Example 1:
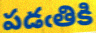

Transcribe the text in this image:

పడఁతికి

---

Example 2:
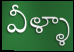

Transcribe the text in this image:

వీళ్ళా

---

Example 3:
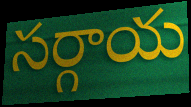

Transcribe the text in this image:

సర్గాయ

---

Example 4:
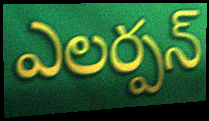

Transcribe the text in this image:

ఎలర్పన్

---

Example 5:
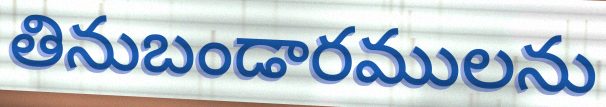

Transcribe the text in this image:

తినుబండారములను